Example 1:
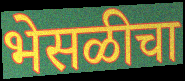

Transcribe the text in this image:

भेसळीचा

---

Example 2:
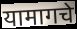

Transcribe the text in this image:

यामागचे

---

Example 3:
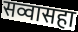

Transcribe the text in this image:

सव्वासहा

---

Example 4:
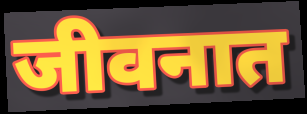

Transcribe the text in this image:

जीवनात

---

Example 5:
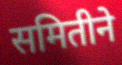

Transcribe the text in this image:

समितीने